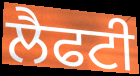
ਲੈਫਟੀ